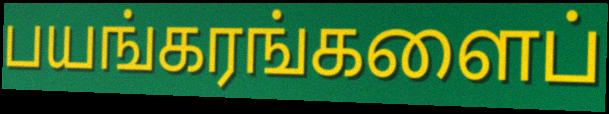
பயங்கரங்களைப்